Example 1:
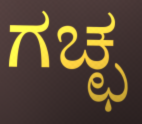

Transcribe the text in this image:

ಗಚ್ಛ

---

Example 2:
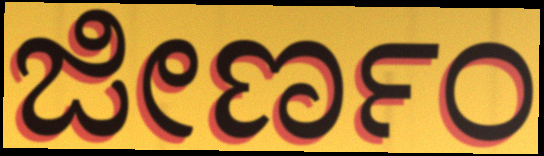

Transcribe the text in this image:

ಜೀರ್ಣಂ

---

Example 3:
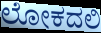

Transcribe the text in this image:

ಲೋಕದಲಿ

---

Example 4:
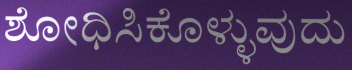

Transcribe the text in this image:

ಶೋಧಿಸಿಕೊಳ್ಳುವುದು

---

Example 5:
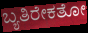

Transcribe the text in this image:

ಬ್ಯತಿರೇಕತೋ